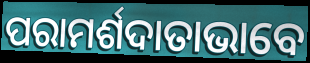
ପରାମର୍ଶଦାତାଭାବେ